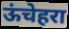
ऊंचेहरा